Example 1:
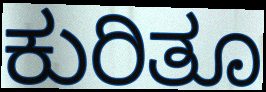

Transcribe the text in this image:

ಕುರಿತೂ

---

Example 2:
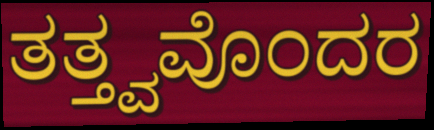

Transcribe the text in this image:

ತತ್ತ್ವವೊಂದರ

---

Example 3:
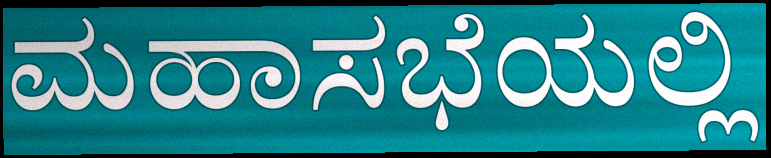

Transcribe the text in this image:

ಮಹಾಸಭೆಯಲ್ಲಿ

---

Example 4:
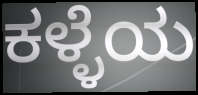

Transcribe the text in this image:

ಕಳ್ಳೆಯ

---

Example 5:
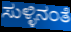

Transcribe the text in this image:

ಸುಳ್ಳಿನಂತೆ